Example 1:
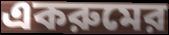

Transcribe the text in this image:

একরুমের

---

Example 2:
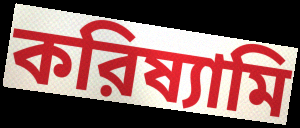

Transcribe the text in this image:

করিষ্যামি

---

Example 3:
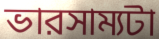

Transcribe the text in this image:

ভারসাম্যটা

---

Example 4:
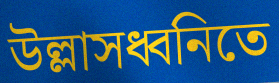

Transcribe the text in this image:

উল্লাসধ্বনিতে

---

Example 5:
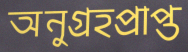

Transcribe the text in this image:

অনুগ্রহপ্রাপ্ত